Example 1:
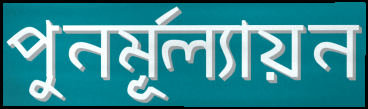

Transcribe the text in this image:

পুনর্মূল্যায়ন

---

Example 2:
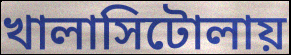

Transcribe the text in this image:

খালাসিটোলায়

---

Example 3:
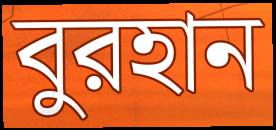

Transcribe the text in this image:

বুরহান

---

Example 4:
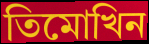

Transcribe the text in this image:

তিমোখিন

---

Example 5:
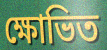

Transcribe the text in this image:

ক্ষোভিত